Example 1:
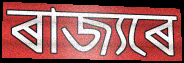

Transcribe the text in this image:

ৰাজ্যৰে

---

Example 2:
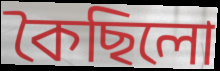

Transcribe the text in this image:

কৈছিলো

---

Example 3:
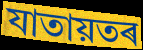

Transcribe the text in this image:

যাতায়তৰ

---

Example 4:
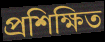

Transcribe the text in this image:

প্ৰশিক্ষিত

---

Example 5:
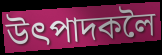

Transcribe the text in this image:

উৎপাদকলৈ